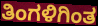
ತಿಂಗಳಿಗಿಂತ